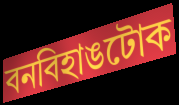
বনবিহাঙটোক